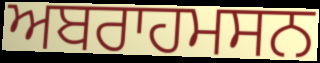
ਅਬਰਾਹਮਸਨ